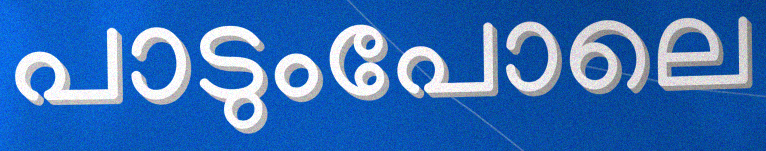
പാടുംപോലെ